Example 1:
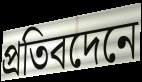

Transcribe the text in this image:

প্রতিবদেনে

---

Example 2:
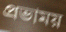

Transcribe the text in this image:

প্রভাময়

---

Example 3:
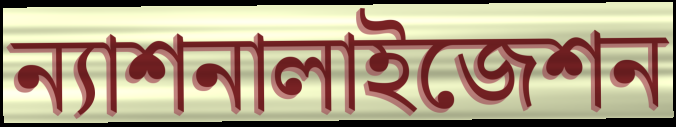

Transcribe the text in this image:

ন্যাশনালাইজেশন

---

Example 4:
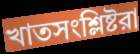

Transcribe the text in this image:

খাতসংশ্লিষ্টরা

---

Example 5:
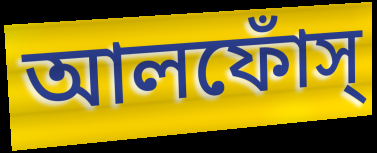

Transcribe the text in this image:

আলফোঁস্